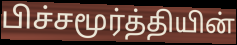
பிச்சமூர்த்தியின்